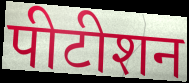
पीटीशन